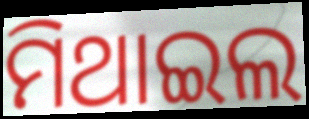
ମିଥାଇଲ